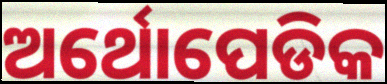
ଅର୍ଥୋପେଡିକ